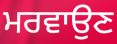
ਮਰਵਾਉਣ